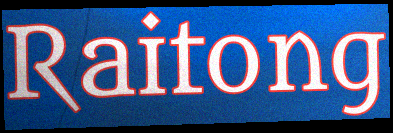
Raitong